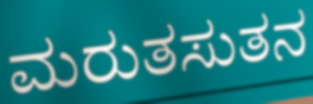
ಮರುತಸುತನ